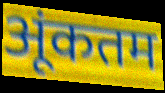
अूंकतम